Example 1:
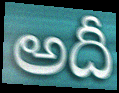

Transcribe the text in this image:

అదీ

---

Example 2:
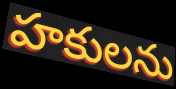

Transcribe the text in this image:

హకులను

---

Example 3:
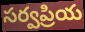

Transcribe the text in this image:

సర్వప్రియ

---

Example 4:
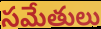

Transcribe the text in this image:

సమేతులు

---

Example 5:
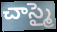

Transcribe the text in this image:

చాస్మై